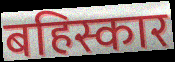
बहिस्कार